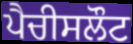
ਪੈਚੀਸਲੌਟ